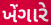
ખેંગારે